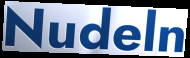
Nudeln